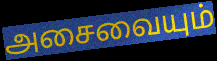
அசைவையும்